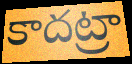
కాదట్రా